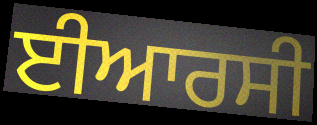
ਈਆਰਸੀ